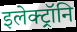
इलेक्ट्रॉनि